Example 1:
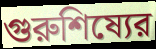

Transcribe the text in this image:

গুরুশিষ্যের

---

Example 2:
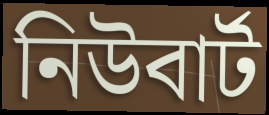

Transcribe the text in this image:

নিউবার্ট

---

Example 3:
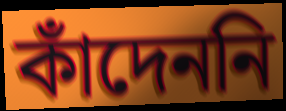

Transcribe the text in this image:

কাঁদেননি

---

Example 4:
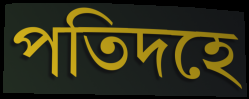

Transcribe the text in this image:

পতিদহে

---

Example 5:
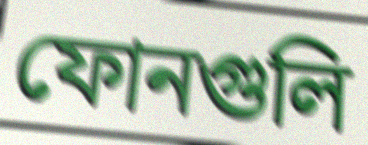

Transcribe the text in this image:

ফোনগুলি